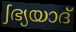
ഽഭ്യയാദ്